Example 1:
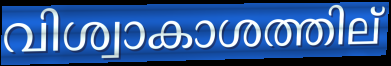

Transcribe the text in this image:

വിശ്വാകാശത്തില്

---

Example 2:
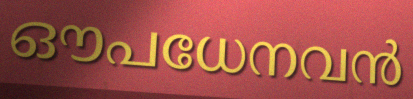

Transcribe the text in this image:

ഔപധേനവൻ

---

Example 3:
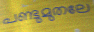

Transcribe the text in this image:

പണ്ടുമുതലേ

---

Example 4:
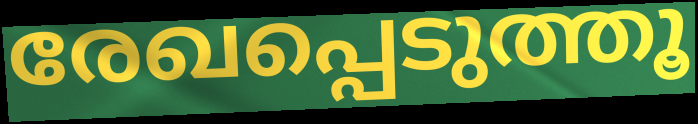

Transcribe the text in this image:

രേഖപ്പെടുത്തൂ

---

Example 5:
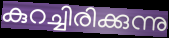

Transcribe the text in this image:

കുറച്ചിരിക്കുന്നു